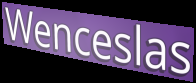
Wenceslas